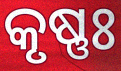
କୃଷ୍ଣଃ